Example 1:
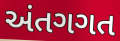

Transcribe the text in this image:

અંતગગત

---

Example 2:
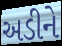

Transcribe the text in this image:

અડીને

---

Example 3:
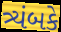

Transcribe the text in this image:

ત્ર્યંબકે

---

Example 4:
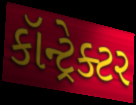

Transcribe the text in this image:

કૉન્ટ્રેક્ટર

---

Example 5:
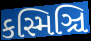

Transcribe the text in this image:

કસ્મિઞ્ચિ